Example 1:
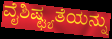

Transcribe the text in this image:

ವೈಶಿಷ್ಟ್ಯತೆಯನ್ನು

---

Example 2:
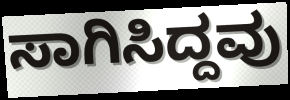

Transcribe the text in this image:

ಸಾಗಿಸಿದ್ದವು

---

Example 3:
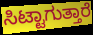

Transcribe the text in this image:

ಸಿಟ್ಟಾಗುತ್ತಾರೆ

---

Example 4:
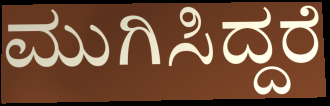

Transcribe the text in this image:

ಮುಗಿಸಿದ್ದರೆ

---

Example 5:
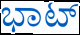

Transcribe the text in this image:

ಭಾಟ್